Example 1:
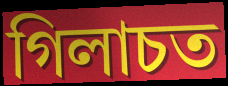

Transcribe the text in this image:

গিলাচত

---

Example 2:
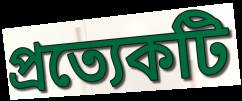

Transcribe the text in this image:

প্ৰত্যেকটি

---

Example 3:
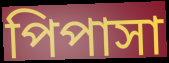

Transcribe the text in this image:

পিপাসা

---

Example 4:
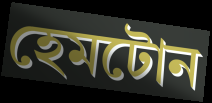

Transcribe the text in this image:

হেমটোন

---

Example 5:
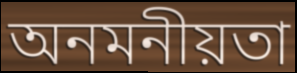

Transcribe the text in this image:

অনমনীয়তা